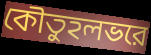
কৌতুহলভরে